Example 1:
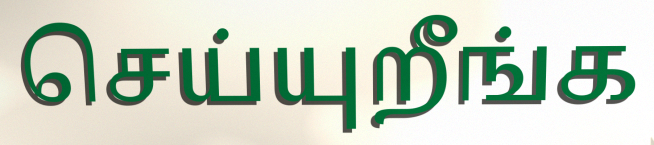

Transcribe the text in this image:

செய்யுறீங்க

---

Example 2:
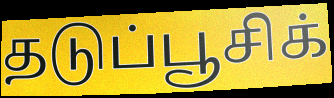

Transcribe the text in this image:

தடுப்பூசிக்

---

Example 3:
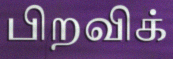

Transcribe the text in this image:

பிறவிக்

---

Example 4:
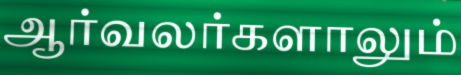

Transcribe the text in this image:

ஆர்வலர்களாலும்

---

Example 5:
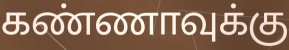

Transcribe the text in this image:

கண்ணாவுக்கு